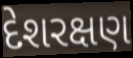
દેશરક્ષણ